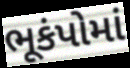
ભૂકંપોમાં